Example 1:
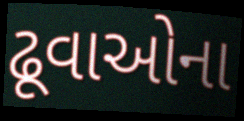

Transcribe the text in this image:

ઢૂવાઓના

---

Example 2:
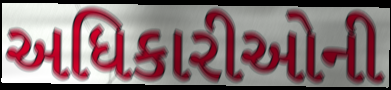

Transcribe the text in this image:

અધિકારીઓની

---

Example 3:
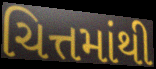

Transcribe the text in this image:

ચિત્તમાંથી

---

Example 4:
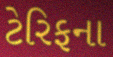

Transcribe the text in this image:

ટેરિફના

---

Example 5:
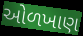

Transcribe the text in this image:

ઓળખાણ